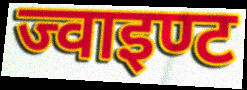
ज्वाइण्ट